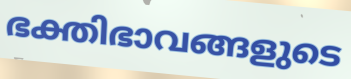
ഭക്തിഭാവങ്ങളുടെ